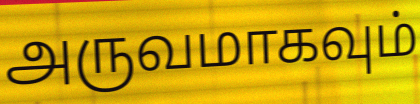
அருவமாகவும்